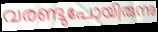
വരണ്ടുപോയിരുന്നു